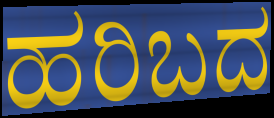
ಹರಿಬದ